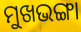
ମୁଖଭଙ୍ଗା